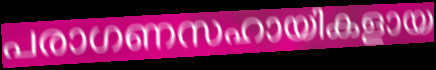
പരാഗണസഹായികളായ